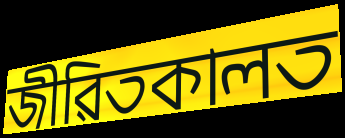
জীৱিতকালত